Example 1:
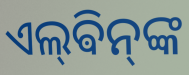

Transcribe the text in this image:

ଏଲ୍‌ଵିନ୍‌ଙ୍କ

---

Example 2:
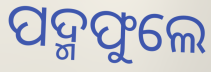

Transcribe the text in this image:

ପଦ୍ମଫୁଲେ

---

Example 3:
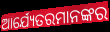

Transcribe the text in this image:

ଆର୍ଯ୍ୟେତରମାନଙ୍କର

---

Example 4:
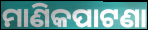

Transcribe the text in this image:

ମାଣିକପାଟଣା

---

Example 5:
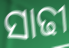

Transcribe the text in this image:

ସାଢୀ